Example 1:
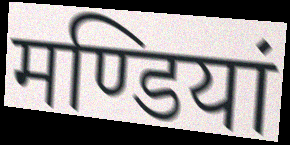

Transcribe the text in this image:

मण्डियां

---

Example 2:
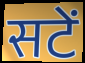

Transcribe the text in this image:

सटें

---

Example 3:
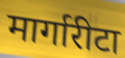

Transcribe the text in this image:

मार्गारीटा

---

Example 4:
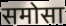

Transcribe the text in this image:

समोसा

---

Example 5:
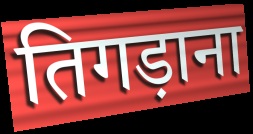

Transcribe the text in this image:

तिगड़ाना